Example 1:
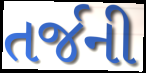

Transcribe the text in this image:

તર્જની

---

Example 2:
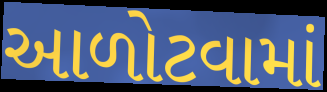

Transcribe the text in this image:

આળોટવામાં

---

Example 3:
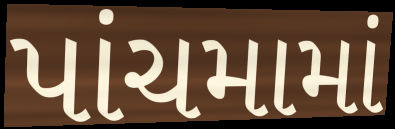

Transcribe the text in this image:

પાંચમામાં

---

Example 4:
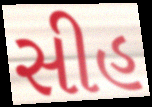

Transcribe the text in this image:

સીહ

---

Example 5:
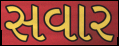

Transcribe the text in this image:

સવાર